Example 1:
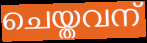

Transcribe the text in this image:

ചെയ്തവന്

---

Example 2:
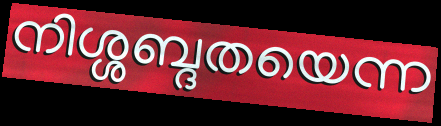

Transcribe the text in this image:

നിശ്ശബ്ദതയെന്ന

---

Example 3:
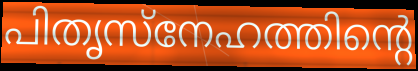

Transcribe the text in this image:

പിതൃസ്നേഹത്തിന്റെ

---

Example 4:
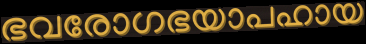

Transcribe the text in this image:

ഭവരോഗഭയാപഹായ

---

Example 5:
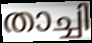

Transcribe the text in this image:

താച്ചി